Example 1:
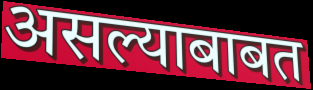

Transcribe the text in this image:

असल्याबाबत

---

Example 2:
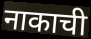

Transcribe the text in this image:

नाकाची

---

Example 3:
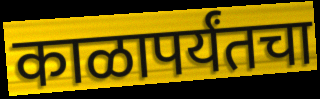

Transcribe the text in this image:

काळापर्यंतचा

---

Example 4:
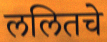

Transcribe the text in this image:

ललितचे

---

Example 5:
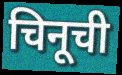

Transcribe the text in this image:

चिनूची